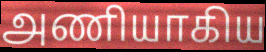
அணியாகிய